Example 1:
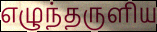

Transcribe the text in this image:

எழுந்தருளிய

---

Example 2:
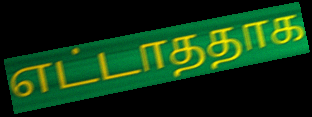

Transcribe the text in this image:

எட்டாததாக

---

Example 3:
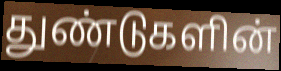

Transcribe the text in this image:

துண்டுகளின்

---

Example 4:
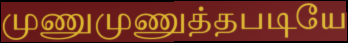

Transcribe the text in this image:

முணுமுணுத்தபடியே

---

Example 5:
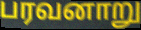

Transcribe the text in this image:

பரவனாறு